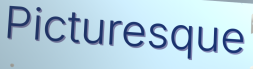
Picturesque